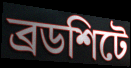
ব্রডশিটে